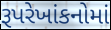
રૂપરેખાંકનોમાં